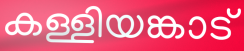
കള്ളിയങ്കാട്